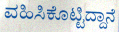
ವಹಿಸಿಕೊಟ್ಟಿದ್ದಾನೆ